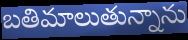
బతిమాలుతున్నాను